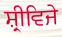
ਸ਼੍ਰੀਵਿਜੇ